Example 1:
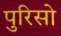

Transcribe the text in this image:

पुरिसो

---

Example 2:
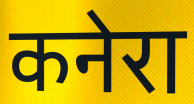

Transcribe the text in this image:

कनेरा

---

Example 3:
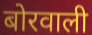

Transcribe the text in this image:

बोरवाली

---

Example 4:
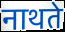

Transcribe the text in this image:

नाथते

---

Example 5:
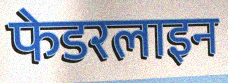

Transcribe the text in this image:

फेडरलाइन